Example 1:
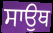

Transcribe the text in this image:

ਸਾਉਥ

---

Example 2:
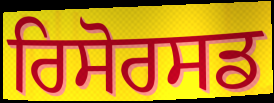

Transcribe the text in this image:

ਰਿਸੋਰਸਡ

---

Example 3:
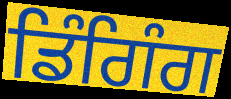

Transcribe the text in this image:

ਡਿੰਗਿੰਗ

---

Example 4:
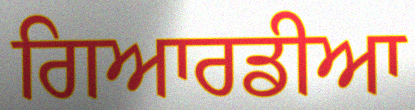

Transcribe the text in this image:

ਗਿਆਰਡੀਆ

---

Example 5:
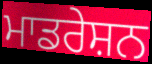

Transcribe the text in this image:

ਮਾਡਰੇਸ਼ਨ